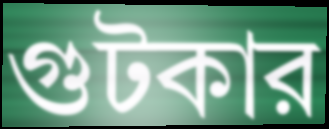
গুটকার